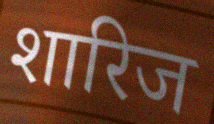
शारिज